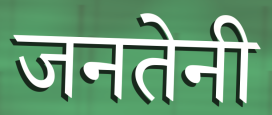
जनतेनी